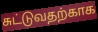
சுட்டுவதற்காக